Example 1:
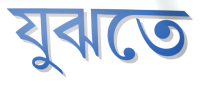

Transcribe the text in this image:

যুঝতে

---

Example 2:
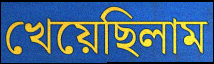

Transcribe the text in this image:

খেয়েছিলাম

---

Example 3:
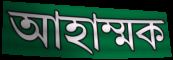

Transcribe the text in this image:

আহাম্মক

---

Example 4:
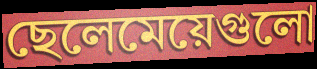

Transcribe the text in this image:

ছেলেমেয়েগুলো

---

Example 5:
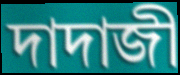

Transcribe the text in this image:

দাদাজী